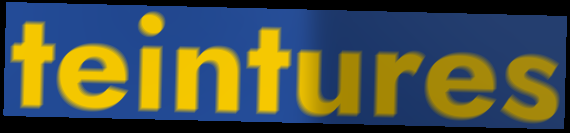
teintures